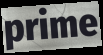
prime